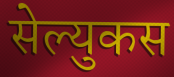
सेल्युकस